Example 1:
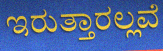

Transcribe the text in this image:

ಇರುತ್ತಾರಲ್ಲವೆ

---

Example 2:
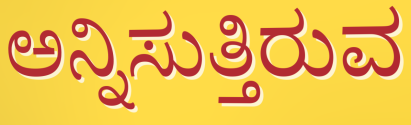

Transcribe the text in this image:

ಅನ್ನಿಸುತ್ತಿರುವ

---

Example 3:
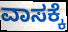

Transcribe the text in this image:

ವಾಸಕ್ಕೆ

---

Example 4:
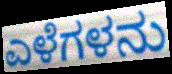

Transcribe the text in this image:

ಎಳೆಗಳನು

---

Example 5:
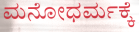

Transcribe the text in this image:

ಮನೋಧರ್ಮಕ್ಕೆ